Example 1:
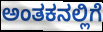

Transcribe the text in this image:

ಅಂತಕನಲ್ಲಿಗೆ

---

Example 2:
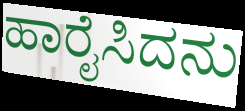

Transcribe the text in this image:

ಹಾರೈಸಿದನು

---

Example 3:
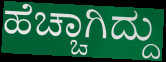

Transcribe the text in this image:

ಹೆಚ್ಚಾಗಿದ್ದು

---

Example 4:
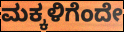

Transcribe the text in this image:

ಮಕ್ಕಳಿಗೆಂದೇ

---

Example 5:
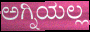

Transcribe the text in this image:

ಅಗ್ನಿಯಲ್ಲ